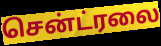
சென்ட்ரலை